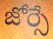
జోర్సే